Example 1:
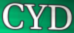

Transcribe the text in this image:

CYD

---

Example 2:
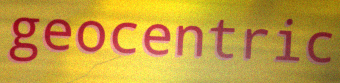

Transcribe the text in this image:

geocentric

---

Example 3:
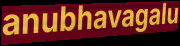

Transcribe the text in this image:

anubhavagalu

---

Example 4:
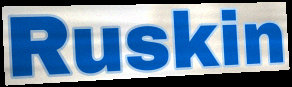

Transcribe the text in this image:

Ruskin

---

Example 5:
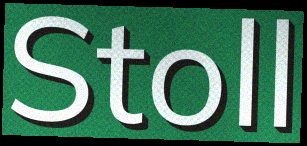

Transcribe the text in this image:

Stoll